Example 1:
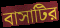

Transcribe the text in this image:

বাসাটির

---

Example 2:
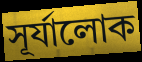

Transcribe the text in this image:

সূর্যালোক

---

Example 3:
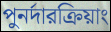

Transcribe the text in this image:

পুনর্দারক্রিয়াং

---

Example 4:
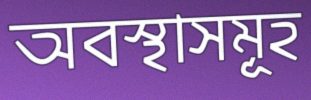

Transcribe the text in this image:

অবস্থাসমূহ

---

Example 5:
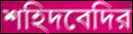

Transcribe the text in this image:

শহিদবেদির